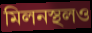
মিলনস্থলও